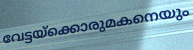
വേട്ടയ്ക്കൊരുമകനെയും